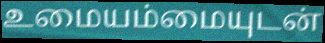
உமையம்மையுடன்